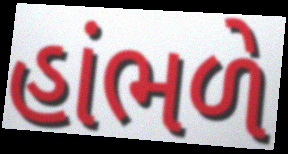
હાંભળે